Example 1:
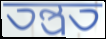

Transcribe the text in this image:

তন্ত্ৰত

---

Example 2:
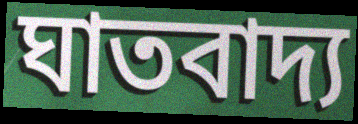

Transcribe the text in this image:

ঘাতবাদ্য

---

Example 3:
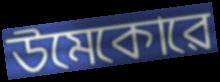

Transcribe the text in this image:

উমেকোৱে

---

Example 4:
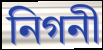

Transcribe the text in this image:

নিগনী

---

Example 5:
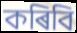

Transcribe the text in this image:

কৰিবি